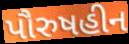
પૌરુષહીન